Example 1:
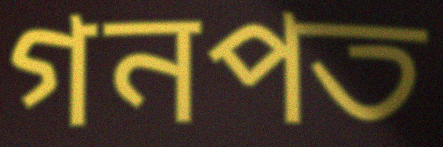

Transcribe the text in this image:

গনপত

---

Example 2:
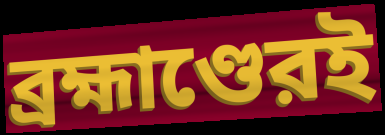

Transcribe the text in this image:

ব্রহ্মাণ্ডেরই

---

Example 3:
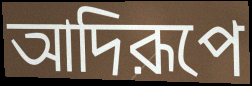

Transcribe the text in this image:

আদিরূপে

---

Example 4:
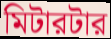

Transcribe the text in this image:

মিটারটার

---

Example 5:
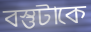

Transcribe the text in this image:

বস্তুটাকে